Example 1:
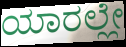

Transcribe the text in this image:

ಯಾರಲ್ಲೇ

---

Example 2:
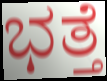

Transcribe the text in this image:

ಭತ್ತೆ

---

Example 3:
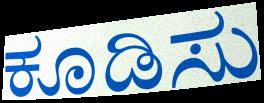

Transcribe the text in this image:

ಕೂಡಿಸು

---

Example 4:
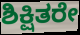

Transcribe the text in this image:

ಶಿಕ್ಷಿತರೇ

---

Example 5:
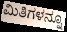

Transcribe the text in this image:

ಮಿತಿಗಳನ್ನೂ